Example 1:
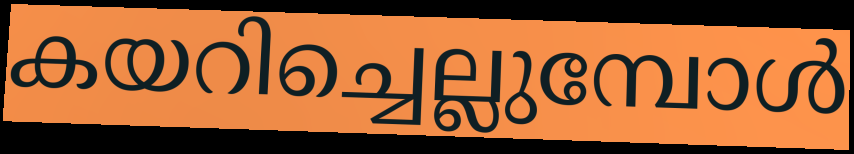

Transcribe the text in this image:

കയറിച്ചെല്ലുമ്പോൾ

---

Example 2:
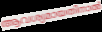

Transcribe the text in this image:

ആവശ്യമായതിനാൽ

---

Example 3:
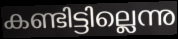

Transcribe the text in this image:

കണ്ടിട്ടില്ലെന്നു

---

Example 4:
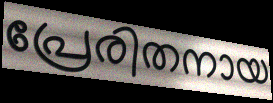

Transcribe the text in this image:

പ്രേരിതനായ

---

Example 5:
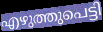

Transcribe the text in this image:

എഴുത്തുപെട്ടി